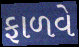
ફાળવે